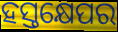
ହସ୍ତକ୍ଷେପର